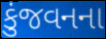
કુંજવનના